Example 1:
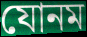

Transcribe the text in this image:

যোনম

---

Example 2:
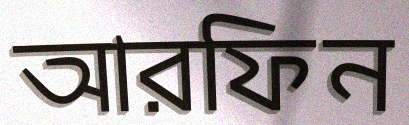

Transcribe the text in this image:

আরফিন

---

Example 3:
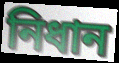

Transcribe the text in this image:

নিধান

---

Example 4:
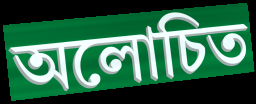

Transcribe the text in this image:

অলোচিত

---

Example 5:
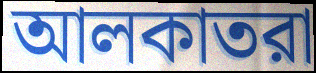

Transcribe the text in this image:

আলকাতরা